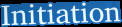
Initiation